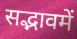
सद्भावमें